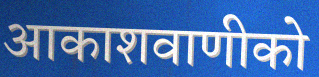
आकाशवाणीको